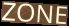
ZONE